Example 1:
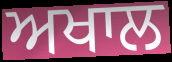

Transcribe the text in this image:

ਅਖਾਲ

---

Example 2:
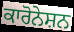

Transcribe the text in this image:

ਕਾਰੋਨੇਸ਼ਨ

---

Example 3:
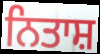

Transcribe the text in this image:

ਨਿਤਾਸ਼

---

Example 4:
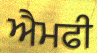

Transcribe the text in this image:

ਐਮਫੀ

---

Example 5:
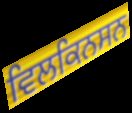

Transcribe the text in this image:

ਵਿਲਕਿਨਸਨ